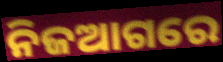
ନିଜଆଗରେ